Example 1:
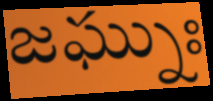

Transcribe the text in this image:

జఘ్నుః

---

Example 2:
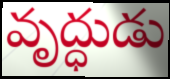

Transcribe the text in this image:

వృద్ధుడు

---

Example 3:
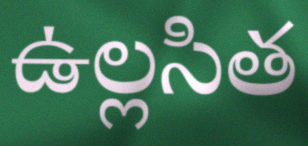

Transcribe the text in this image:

ఉల్లసిత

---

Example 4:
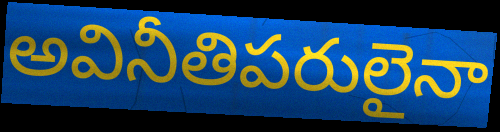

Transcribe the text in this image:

అవినీతిపరులైనా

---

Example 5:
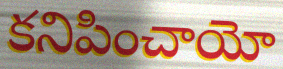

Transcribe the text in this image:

కనిపించాయో